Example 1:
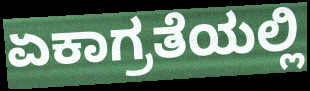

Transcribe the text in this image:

ಏಕಾಗ್ರತೆಯಲ್ಲಿ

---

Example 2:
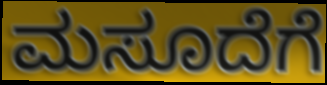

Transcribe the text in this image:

ಮಸೂದೆಗೆ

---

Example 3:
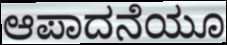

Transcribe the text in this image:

ಆಪಾದನೆಯೂ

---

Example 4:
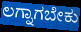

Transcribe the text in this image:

ಲಗ್ನಾಗಬೇಕು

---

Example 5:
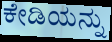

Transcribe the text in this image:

ಕೇಡಿಯನ್ನು